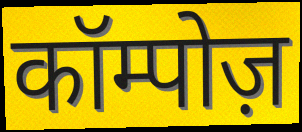
कॉम्पोज़